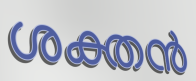
ശക്തൻ